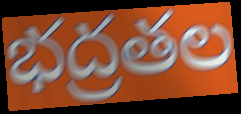
భద్రతల